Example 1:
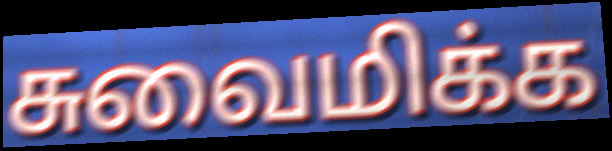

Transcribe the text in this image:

சுவைமிக்க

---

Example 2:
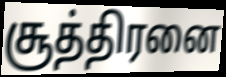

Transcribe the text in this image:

சூத்திரனை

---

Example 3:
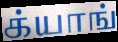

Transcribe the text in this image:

க்யாங்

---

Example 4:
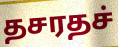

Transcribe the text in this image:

தசரதச்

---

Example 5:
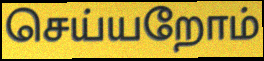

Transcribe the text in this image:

செய்யறோம்